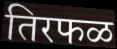
तिरफळ